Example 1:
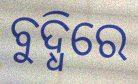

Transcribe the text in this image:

ବୁଦ୍ଧିରେ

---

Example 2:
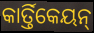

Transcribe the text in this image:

କାର୍ତ୍ତିକେୟନ୍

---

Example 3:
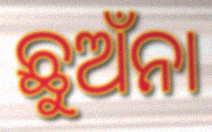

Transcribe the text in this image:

ଛୁଅଁନା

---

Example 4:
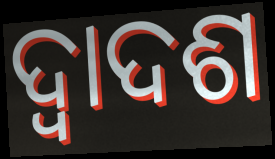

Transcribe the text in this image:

ଦ୍ବାଦଶ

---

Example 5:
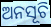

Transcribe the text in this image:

ଅନସୂଚି